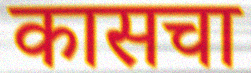
कासचा